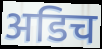
अडिच